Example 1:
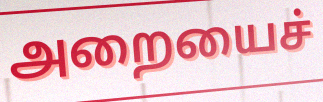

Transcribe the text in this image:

அறையைச்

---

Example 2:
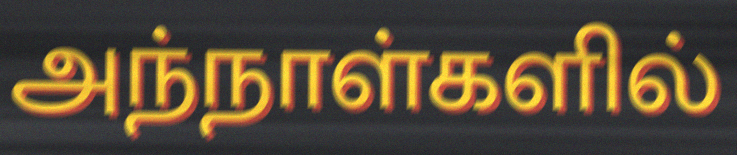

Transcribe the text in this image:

அந்நாள்களில்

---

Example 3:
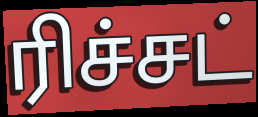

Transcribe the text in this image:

ரிச்சட்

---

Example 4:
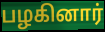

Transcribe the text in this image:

பழகினார்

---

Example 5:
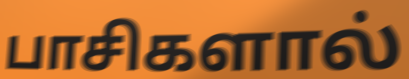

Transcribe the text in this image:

பாசிகளால்